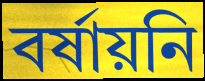
বর্ষায়নি